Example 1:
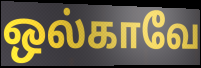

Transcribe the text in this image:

ஒல்காவே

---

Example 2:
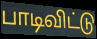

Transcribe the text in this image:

பாடிவிட்டு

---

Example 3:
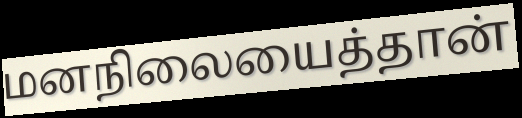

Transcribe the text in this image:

மனநிலையைத்தான்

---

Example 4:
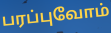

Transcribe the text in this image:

பரப்புவோம்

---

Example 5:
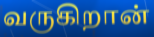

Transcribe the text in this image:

வருகிறான்